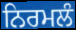
ਨਿਰਮਲੰ